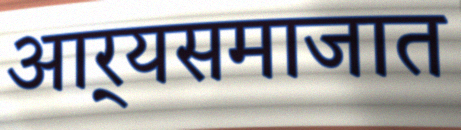
आर्यसमाजात